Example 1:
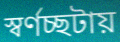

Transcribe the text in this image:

স্বর্ণচ্ছটায়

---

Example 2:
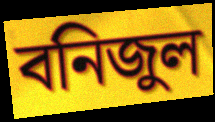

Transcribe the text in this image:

বনিজুল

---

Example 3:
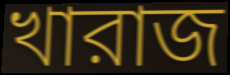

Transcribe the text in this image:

খারাজ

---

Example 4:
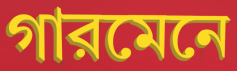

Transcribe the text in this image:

গারমেনে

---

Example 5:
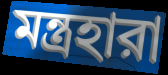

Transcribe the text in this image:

মন্ত্রহারা